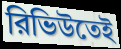
রিভিউতেই